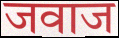
जवाज